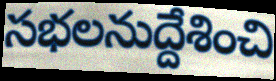
సభలనుద్దేశించి